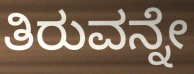
ತಿರುವನ್ನೇ